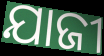
ଯାଜୀ